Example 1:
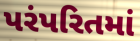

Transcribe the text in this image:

પરંપરિતમાં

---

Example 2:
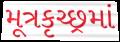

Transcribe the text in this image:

મૂત્રકૃચ્છ્રમાં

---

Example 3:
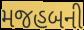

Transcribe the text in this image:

મજહબની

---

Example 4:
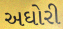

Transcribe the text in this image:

અઘોરી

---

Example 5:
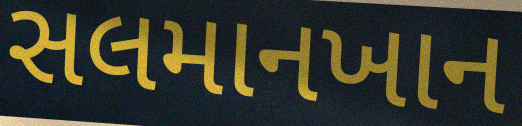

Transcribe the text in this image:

સલમાનખાન